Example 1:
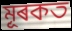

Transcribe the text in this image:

মূৰকত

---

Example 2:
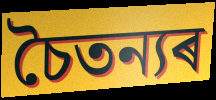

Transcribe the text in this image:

চৈতন্যৰ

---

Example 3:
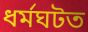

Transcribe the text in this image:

ধৰ্মঘটত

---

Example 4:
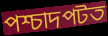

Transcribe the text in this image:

পশ্চাদপটত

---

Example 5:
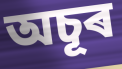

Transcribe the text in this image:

অচূৰ